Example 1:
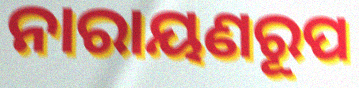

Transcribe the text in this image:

ନାରାୟଣରୂପ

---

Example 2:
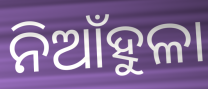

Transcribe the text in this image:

ନିଆଁହୁଳା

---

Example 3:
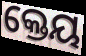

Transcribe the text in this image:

କ୍ତେୟ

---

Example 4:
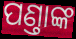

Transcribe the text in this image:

ପଣ୍ତାଙ୍କ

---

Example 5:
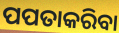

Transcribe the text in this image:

ପପତାକରିବା